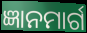
ଜ୍ଞାନମାର୍ଗ